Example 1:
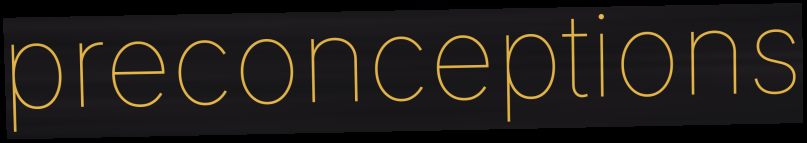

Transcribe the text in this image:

preconceptions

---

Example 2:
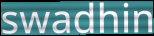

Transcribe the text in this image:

swadhin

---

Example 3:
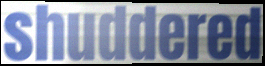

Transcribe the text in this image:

shuddered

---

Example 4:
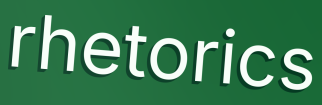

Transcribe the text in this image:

rhetorics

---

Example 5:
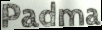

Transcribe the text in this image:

Padma